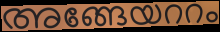
അങ്ങേയററം